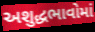
અશુદ્ધભાવોમાં